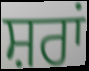
ਸ਼ਰਾਂ